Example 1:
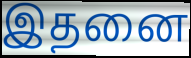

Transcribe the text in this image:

இதனை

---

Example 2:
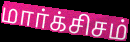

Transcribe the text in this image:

மார்க்சிசம்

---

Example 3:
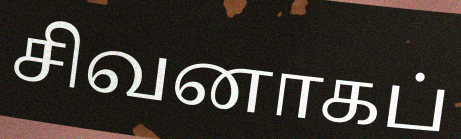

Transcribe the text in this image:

சிவனாகப்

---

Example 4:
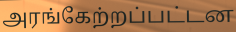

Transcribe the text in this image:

அரங்கேற்றப்பட்டன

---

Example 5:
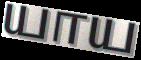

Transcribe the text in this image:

யாய